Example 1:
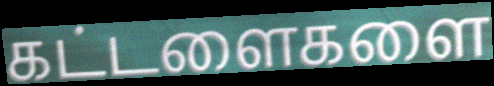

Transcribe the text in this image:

கட்டளைகளை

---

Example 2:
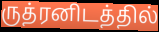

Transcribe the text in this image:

ருத்ரனிடத்தில்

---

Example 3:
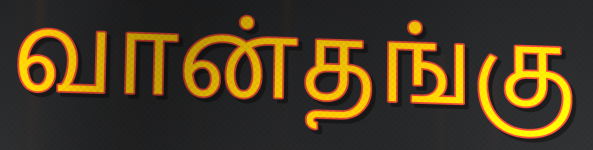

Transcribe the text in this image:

வான்தங்கு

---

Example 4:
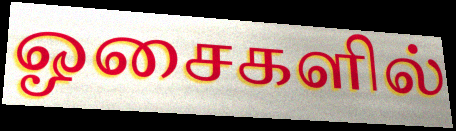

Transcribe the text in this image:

ஓசைகளில்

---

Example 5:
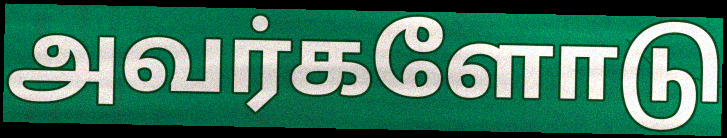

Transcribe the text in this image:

அவர்களோடு